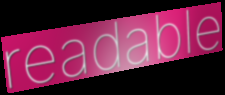
readable